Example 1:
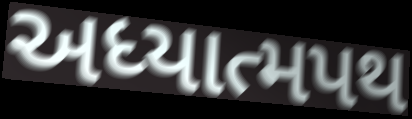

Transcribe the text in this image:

અધ્યાત્મપથ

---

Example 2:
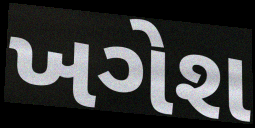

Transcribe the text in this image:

ખગેશ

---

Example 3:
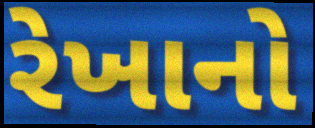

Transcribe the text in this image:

રેખાનો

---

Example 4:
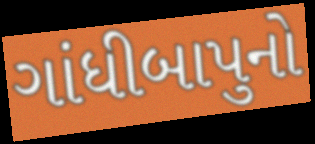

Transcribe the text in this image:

ગાંધીબાપુનો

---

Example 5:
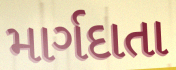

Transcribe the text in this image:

માર્ગદાતા